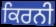
ਕਿਰਨੀ